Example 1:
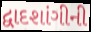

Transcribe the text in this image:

દ્વાદશાંગીની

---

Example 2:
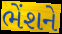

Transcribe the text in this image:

ભેંશને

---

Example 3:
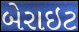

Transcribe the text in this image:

બેરાઇટ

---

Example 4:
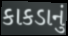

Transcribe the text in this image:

કાકડાનું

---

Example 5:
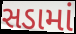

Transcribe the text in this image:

સડામાં